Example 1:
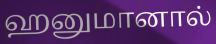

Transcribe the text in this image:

ஹனுமானால்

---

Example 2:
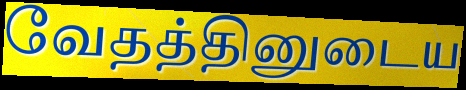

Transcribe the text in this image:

வேதத்தினுடைய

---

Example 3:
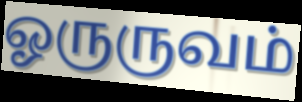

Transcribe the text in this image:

ஓருருவம்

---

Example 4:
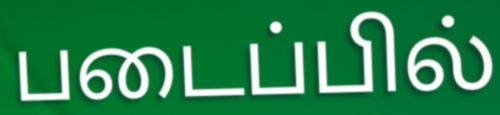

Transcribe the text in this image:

படைப்பில்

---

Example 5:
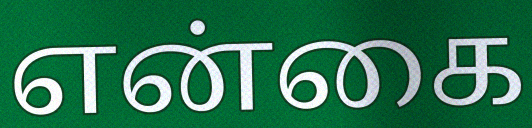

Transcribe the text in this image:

என்கை